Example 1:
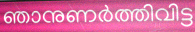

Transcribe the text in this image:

ഞാനുണർത്തിവിട്ട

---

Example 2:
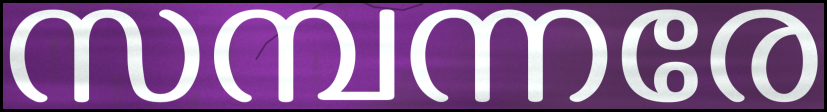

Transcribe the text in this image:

സമ്പന്നരേ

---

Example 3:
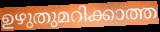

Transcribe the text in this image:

ഉഴുതുമറിക്കാത്ത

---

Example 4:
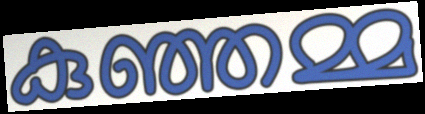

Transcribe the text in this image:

കുഞ്ഞമ്മ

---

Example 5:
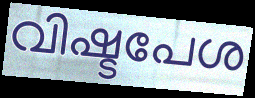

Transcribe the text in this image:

വിഷ്ടപേശ